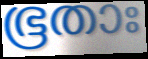
ഭൂതാഃ